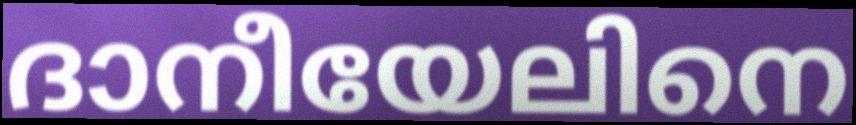
ദാനീയേലിനെ